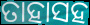
ତାହାସହ